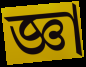
জ্ঞা